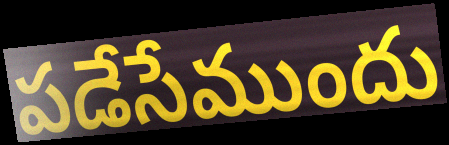
పడేసేముందు